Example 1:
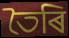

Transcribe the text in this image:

তৈৰি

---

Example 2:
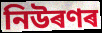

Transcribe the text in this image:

নিউৰণৰ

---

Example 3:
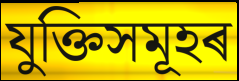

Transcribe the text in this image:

যুক্তিসমূহৰ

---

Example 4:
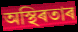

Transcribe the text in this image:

অস্থিৰতাৰ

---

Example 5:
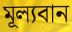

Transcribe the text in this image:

মূল্যবান